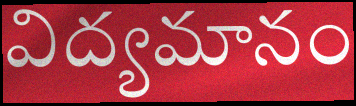
విద్యమానం